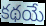
కథయే